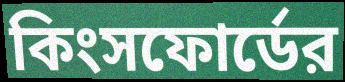
কিংসফোর্ডের